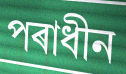
পৰাধীন